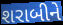
શરાબીને